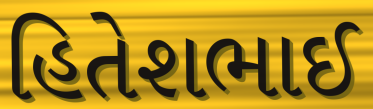
હિતેશભાઈ